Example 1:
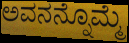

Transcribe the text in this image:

ಅವನನ್ನೊಮ್ಮೆ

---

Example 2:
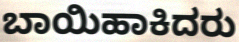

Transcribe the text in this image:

ಬಾಯಿಹಾಕಿದರು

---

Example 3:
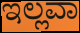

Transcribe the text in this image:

ಇಲ್ಲವಾ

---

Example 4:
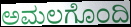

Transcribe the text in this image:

ಅಮಲಗೊಂದಿ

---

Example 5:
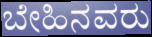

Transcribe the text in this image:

ಬೇಹಿನವರು